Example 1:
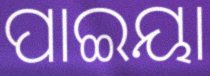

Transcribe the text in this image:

ପାଇୟା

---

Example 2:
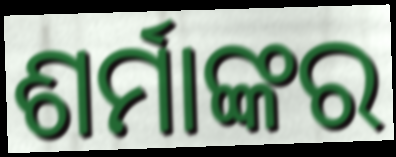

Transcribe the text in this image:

ଶର୍ମାଙ୍କର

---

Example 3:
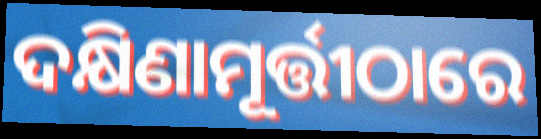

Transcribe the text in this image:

ଦକ୍ଷିଣାମୂର୍ତ୍ତୀଠାରେ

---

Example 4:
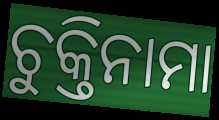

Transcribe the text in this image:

ଚୁକ୍ତିନାମା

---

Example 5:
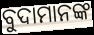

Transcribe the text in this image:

ବୁଦାମାନଙ୍କ